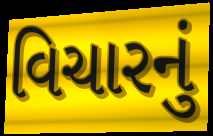
વિચારનું